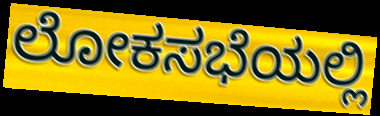
ಲೋಕಸಭೆಯಲ್ಲಿ